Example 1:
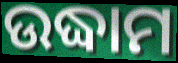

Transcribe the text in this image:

ଉଦ୍ଧାମ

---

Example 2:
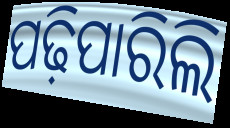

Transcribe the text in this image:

ପଢ଼ିପାରିଲି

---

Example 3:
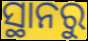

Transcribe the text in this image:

ସ୍ଥାନରୁ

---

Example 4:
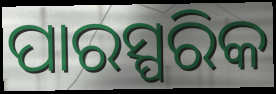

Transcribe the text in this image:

ପାରସ୍ପରିକ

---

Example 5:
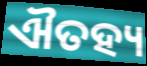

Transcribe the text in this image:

ଐତହ୍ୟ